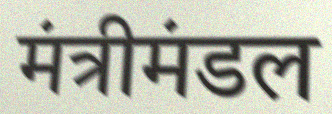
मंत्रीमंडल